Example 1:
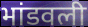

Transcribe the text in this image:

भांडवली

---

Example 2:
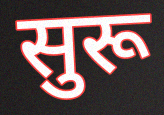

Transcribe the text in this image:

सुरू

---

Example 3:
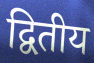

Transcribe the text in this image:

द्वितीय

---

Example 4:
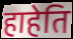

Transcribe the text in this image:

हाहेति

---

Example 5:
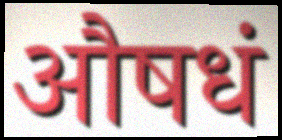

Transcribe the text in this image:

औषधं